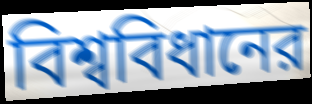
বিশ্ববিধানের